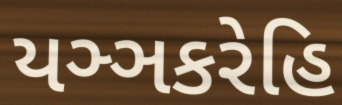
યઞ્ઞકરેહિ